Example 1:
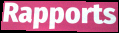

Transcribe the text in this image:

Rapports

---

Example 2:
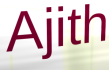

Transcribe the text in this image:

Ajith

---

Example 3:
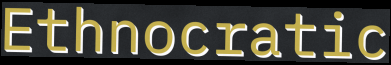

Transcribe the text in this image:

Ethnocratic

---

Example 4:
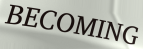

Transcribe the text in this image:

BECOMING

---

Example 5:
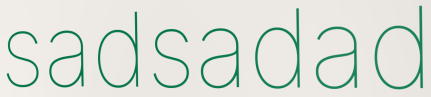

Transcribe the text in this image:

sadsadad